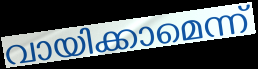
വായിക്കാമെന്ന്